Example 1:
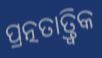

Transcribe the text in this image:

ପ୍ରତ୍ନତାତ୍ତ୍ଵିକ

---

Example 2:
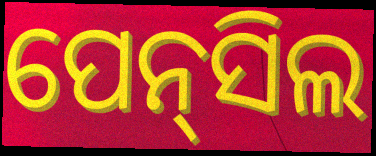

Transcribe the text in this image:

ପେନ୍‌ସିଲ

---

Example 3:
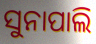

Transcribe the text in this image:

ସୁନାପାଲି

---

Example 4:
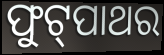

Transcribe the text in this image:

ଫୁଟ୍‌ପାଥର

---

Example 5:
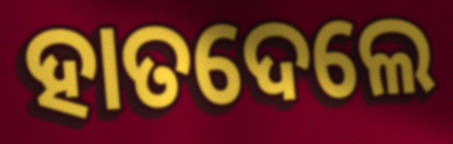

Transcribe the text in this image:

ହାତଦେଲେ